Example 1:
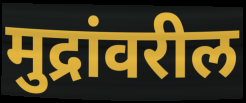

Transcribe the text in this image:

मुद्रांवरील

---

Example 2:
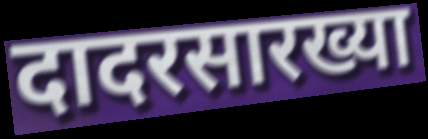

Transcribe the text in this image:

दादरसारख्या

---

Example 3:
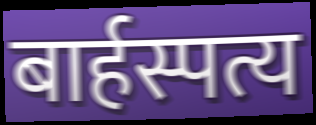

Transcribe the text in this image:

बार्हस्पत्य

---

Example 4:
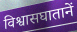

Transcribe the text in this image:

विश्वासघातानें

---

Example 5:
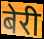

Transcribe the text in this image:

बेरी